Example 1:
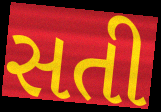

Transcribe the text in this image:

સતી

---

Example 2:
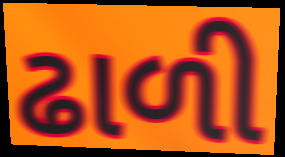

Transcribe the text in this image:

ઢાળી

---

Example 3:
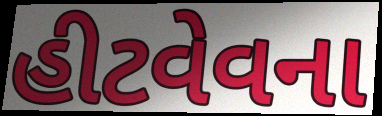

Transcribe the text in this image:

હીટવેવના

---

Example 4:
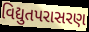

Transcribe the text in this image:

વિદ્યુતપરાસરણ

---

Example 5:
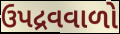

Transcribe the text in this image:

ઉપદ્રવવાળો